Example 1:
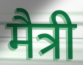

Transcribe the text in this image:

मैत्री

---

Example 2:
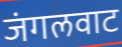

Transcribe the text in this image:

जंगलवाट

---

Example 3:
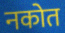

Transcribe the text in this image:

नकोत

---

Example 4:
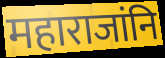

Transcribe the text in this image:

महाराजांनि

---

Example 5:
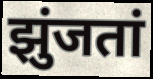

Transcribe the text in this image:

झुंजतां